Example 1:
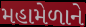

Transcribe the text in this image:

મહામેળાને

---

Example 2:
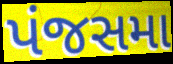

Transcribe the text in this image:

પંજસમા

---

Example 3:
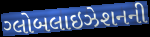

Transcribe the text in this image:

ગ્લોબલાઇઝેશનની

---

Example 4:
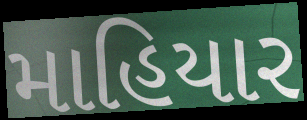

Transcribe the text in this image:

માહિયાર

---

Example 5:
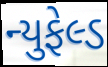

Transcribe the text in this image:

ન્યુફેલ્ડ